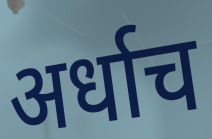
अर्धाच